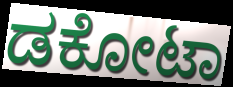
ಡಕೋಟಾ